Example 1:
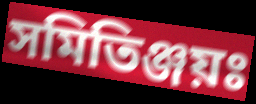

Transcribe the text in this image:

সমিতিঞ্জয়ঃ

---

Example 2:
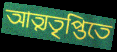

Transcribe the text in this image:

আত্মতৃপ্তিতে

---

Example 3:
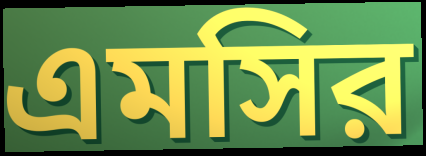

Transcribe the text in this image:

এমসির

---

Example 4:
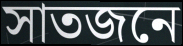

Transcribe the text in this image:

সাতজনে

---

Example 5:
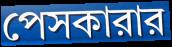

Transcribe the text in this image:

পেসকারার